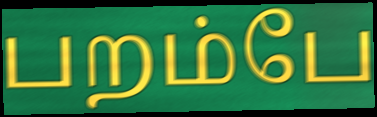
பறம்பே